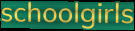
schoolgirls